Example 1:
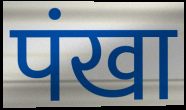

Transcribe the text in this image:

पंखा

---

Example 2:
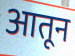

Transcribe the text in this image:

आतून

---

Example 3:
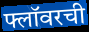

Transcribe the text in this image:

फ्लॉवरची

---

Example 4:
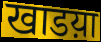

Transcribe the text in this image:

खाडय़ा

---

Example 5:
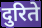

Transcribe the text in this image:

दुरिते